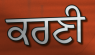
ਕਰਣੀ